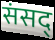
संसद्